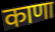
काणा